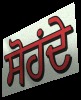
ਸੋਹਂਦੇ